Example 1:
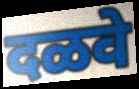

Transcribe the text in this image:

दळवे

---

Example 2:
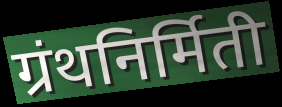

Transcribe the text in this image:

ग्रंथनिर्मिती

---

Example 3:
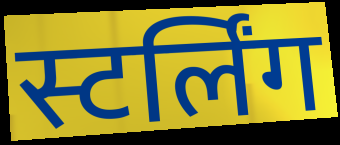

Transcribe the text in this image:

स्टर्लिंग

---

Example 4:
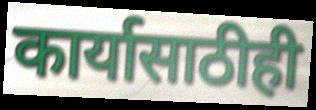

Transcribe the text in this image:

कार्यासाठीही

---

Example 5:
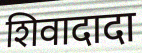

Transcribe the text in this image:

शिवादादा